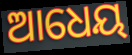
ଆଧେୟ